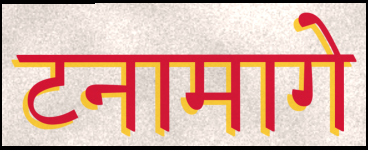
टनामागे